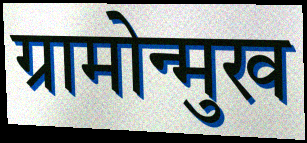
ग्रामोन्मुख